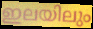
ഇലയിലും